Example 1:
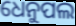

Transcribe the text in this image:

ଧେନୁପଲ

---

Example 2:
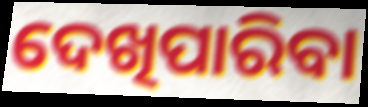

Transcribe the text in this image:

ଦେଖିପାରିବା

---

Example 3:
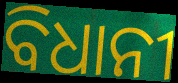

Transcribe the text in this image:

ବିଧାନୀ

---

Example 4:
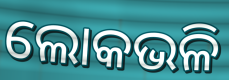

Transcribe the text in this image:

ଲୋକଭଳି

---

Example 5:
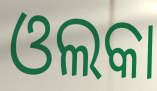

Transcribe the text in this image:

ଓଲକା